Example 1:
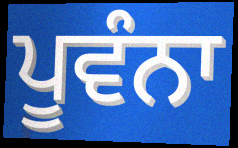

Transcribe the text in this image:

ਪੂਵੰਨਾ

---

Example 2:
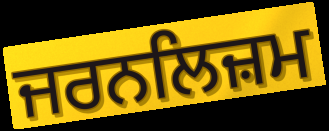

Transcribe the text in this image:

ਜਰਨਲਿਜ਼ਮ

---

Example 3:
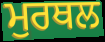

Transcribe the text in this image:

ਮੁਰਥਲ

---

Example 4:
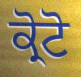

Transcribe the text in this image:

ਕ੍ਰੋਟੋ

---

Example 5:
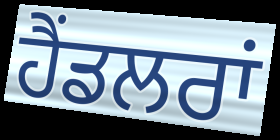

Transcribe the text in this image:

ਹੈਂਡਲਰਾਂ